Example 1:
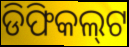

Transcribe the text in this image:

ଡିଫିକଲ୍‌ଟ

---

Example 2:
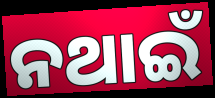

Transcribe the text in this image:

ନଥାଇଁ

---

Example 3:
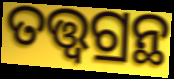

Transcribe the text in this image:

ତତ୍ତ୍ୱଗ୍ରନ୍ଥ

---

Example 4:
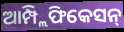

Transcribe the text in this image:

ଆମ୍ପ୍ଲିଫିକେସନ୍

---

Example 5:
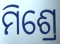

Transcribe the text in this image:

ମିଶ୍ରେ